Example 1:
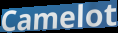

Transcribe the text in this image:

Camelot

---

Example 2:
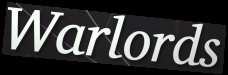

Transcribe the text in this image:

Warlords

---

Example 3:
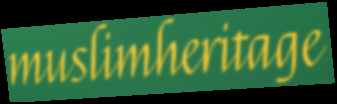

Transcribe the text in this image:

muslimheritage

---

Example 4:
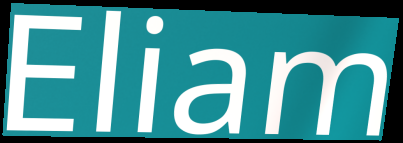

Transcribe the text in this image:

Eliam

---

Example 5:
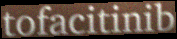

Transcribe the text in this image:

tofacitinib